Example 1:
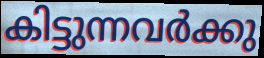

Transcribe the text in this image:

കിട്ടുന്നവർക്കു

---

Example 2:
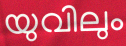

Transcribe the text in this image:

യുവിലും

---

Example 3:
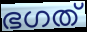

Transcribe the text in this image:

ഭഗത്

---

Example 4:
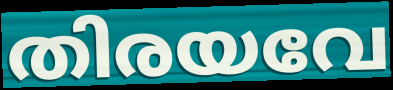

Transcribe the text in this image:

തിരയവേ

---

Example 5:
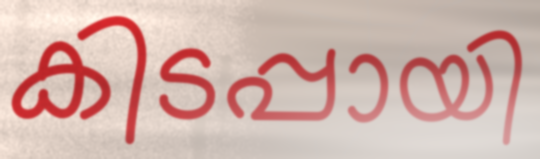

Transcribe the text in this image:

കിടപ്പായി